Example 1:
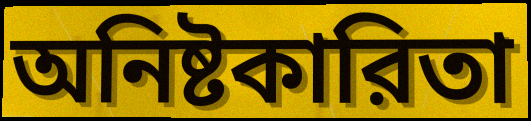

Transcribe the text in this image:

অনিষ্টকারিতা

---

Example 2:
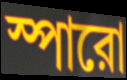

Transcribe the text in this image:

স্পারো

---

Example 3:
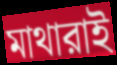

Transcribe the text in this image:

মাথারাই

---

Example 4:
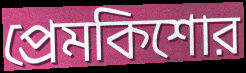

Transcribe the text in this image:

প্রেমকিশোর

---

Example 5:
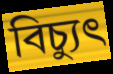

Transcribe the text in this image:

বিচ্যুৎ